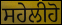
ਸਹੇਲੀਹੋ